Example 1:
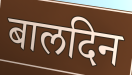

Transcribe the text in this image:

बालदिन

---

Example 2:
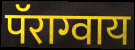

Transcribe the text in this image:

पॅराग्वाय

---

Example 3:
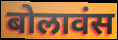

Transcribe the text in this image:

बोलावंस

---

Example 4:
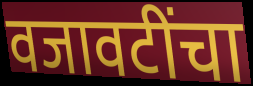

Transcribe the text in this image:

वजावटींचा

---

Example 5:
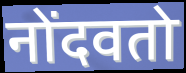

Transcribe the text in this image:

नोंदवतो